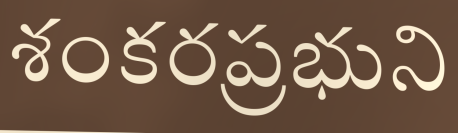
శంకరప్రభుని